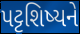
પટ્ટશિષ્યને